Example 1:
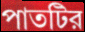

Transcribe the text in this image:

পাতটির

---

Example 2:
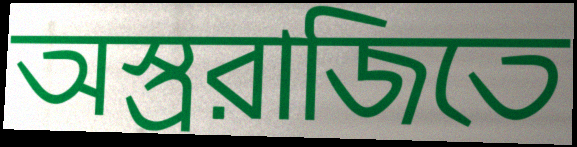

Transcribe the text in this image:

অস্ত্ররাজিতে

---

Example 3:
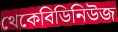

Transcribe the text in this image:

থেকেবিডিনিউজ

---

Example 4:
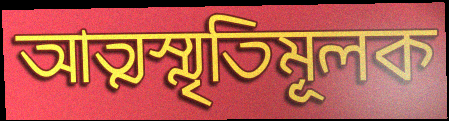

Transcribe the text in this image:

আত্মস্মৃতিমূলক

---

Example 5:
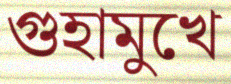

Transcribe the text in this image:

গুহামুখে